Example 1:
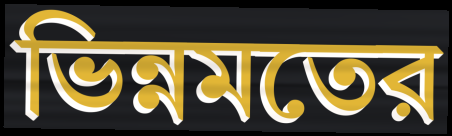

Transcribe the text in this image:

ভিন্নমতের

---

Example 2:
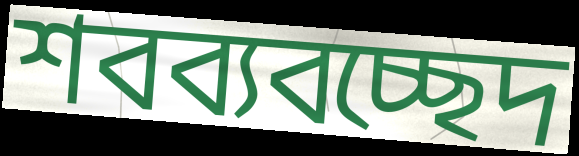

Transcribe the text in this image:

শবব্যবচ্ছেদ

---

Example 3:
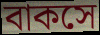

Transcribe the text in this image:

বাকসে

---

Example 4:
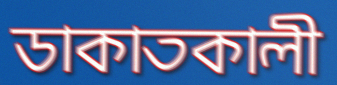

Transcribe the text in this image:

ডাকাতকালী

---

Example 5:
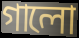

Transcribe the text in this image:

গালো